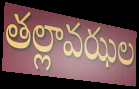
తల్లావఝల